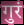
गुरं